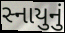
સ્નાયુનું